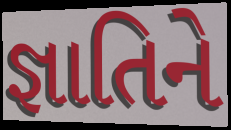
જ્ઞાતિને